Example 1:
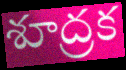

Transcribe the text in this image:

శూద్రక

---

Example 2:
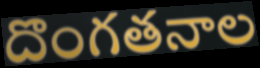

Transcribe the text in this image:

దొంగతనాల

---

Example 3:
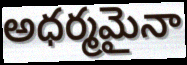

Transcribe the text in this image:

అధర్మమైనా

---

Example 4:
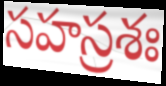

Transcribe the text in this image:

సహస్రశః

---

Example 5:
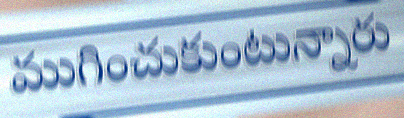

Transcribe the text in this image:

ముగించుకుంటున్నారు